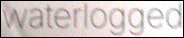
waterlogged